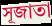
সূজাতা